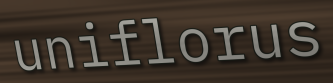
uniflorus